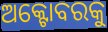
ଅକ୍ଟୋବରକୁ